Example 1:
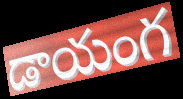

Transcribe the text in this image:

డాయంగ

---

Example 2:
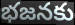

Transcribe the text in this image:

భజనకు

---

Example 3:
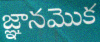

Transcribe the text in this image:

జ్ఞానమొక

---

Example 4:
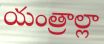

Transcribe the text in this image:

యంత్రాల్లా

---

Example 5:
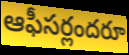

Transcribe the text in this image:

ఆఫీసర్లందరూ